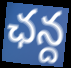
ఛన్ద